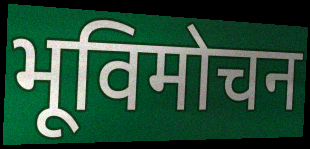
भूविमोचन